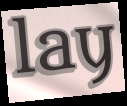
lay